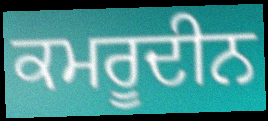
ਕਮਰੂਦੀਨ